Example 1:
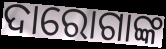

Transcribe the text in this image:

ଦାରୋଗାଙ୍କ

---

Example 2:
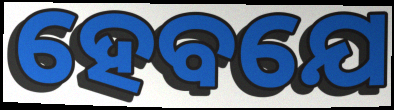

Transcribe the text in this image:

ହେବଯେ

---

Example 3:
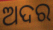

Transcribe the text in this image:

ଅଦର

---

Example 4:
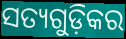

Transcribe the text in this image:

ସତ୍ୟଗୁଡ଼ିକର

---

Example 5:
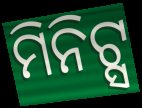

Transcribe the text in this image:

ମିନିଟ୍ସ